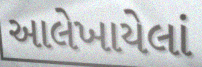
આલેખાયેલાં